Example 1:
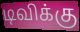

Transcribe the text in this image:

டிவிக்கு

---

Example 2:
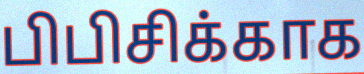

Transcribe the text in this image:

பிபிசிக்காக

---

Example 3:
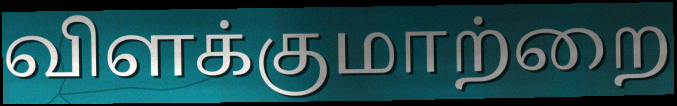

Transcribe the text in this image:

விளக்குமாற்றை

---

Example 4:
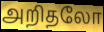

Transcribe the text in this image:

அறிதலோ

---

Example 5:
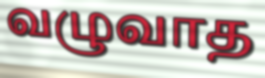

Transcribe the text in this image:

வழுவாத